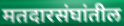
मतदारसंघांतील